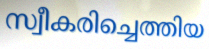
സ്വീകരിച്ചെത്തിയ